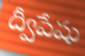
ద్వీపేషు